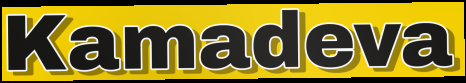
Kamadeva